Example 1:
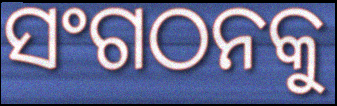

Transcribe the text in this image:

ସଂଗଠନକୁ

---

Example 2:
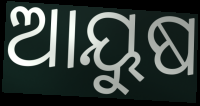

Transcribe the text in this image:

ଆୟୁଷ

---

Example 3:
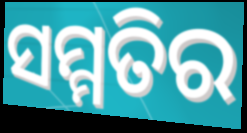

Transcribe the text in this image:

ସମ୍ମତିର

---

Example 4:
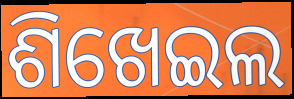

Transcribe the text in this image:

ଶିଖେଇଲ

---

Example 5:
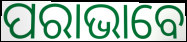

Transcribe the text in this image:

ପରାଭାବେ